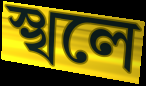
স্খলে